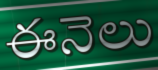
ఈనెలు